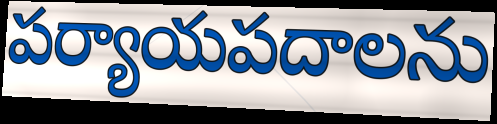
పర్యాయపదాలను